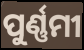
ପୁର୍ଣ୍ଣମୀ